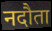
नदौता